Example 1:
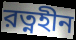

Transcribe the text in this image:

রত্নহীন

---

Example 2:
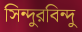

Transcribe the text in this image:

সিন্দুরবিন্দু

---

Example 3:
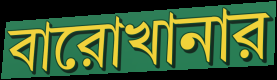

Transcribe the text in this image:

বারোখানার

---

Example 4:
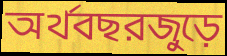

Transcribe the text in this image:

অর্থবছরজুড়ে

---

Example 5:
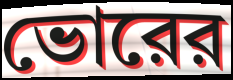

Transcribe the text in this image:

ভোরের